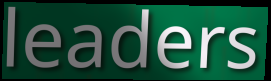
leaders